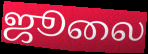
ஜூலை